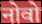
नोवो